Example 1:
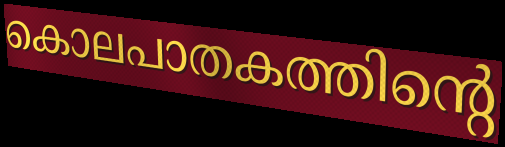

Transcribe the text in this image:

കൊലപാതകത്തിന്റെ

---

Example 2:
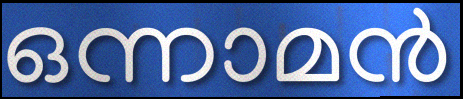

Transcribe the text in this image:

ഒന്നാമൻ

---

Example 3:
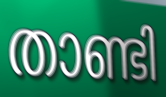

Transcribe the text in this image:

താണ്ടി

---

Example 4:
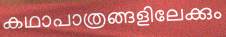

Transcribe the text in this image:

കഥാപാത്രങ്ങളിലേക്കും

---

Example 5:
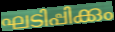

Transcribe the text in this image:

ഘടിപ്പിക്കും